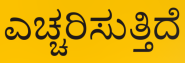
ಎಚ್ಚರಿಸುತ್ತಿದೆ